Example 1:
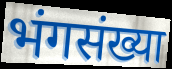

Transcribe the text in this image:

भंगसंख्या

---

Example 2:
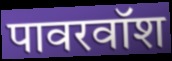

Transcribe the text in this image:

पावरवॉश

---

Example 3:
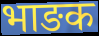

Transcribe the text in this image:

भाङक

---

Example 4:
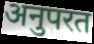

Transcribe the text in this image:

अनुपरत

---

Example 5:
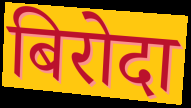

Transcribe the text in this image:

बिरोदा